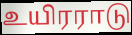
உயிரராடு